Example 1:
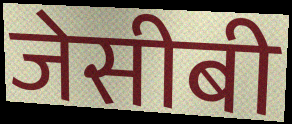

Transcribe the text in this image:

जेसीबी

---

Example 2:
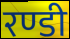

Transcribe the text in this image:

रण्डी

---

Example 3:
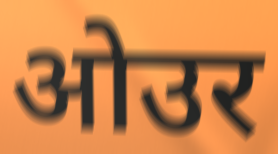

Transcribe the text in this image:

ओउर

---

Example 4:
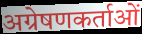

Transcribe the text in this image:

अग्रेषणकर्ताओं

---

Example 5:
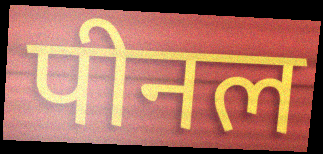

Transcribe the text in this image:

पीनल